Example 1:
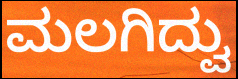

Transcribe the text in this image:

ಮಲಗಿದ್ವು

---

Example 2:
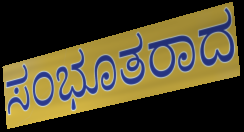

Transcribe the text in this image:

ಸಂಭೂತರಾದ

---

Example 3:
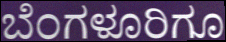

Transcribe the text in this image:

ಬೆಂಗಳೂರಿಗೂ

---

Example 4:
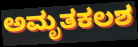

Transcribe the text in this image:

ಅಮೃತಕಲಶ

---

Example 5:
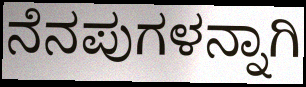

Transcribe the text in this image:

ನೆನಪುಗಳನ್ನಾಗಿ